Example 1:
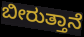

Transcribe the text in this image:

ಬೀರುತ್ತಾನೆ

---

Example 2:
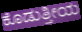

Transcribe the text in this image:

ಕೊಡುತ್ತೀಯ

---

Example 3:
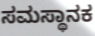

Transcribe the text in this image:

ಸಮಸ್ಥಾನಕ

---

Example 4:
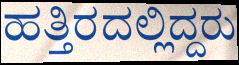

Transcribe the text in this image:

ಹತ್ತಿರದಲ್ಲಿದ್ದರು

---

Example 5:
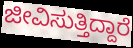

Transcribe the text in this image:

ಜೀವಿಸುತ್ತಿದ್ದಾರೆ